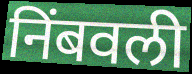
निंबवली